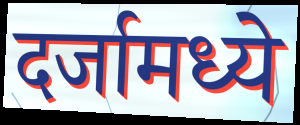
दर्जामध्ये